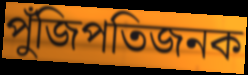
পুঁজিপতিজনক